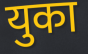
युका